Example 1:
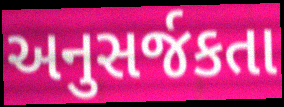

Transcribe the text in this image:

અનુસર્જકતા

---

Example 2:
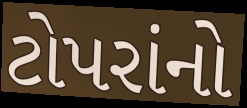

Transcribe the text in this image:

ટોપરાંનો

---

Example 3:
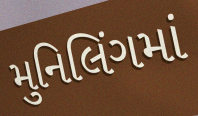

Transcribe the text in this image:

મુનિલિંગમાં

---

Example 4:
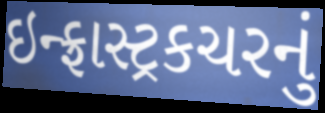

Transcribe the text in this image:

ઇન્ફ્રાસ્ટ્રકચરનું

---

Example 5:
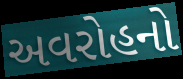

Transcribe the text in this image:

અવરોહનો